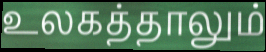
உலகத்தாலும்